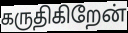
கருதிகிறேன்